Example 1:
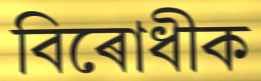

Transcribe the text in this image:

বিৰোধীক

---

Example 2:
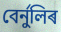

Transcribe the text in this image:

বেৰ্নুলিৰ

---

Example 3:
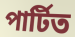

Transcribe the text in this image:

পাৰ্টিত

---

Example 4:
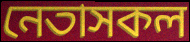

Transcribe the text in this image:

নেতাসকল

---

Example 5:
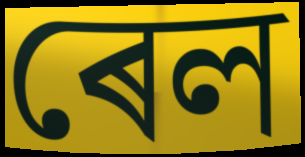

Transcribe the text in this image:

ৰেল